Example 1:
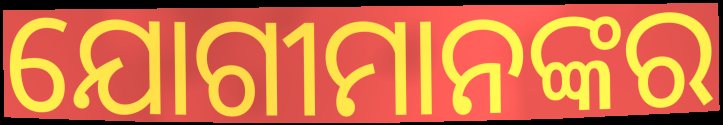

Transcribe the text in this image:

ଯୋଗୀମାନଙ୍କର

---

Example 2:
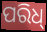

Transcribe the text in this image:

ପରିଧ୍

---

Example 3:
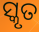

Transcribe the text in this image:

ସ୍କୃତ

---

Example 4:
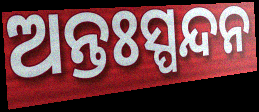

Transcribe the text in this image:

ଅନ୍ତଃସ୍ପନ୍ଦନ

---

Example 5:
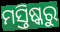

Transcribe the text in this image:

ମସ୍ତିଷ୍କରୁ